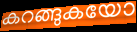
കറങ്ങുകയോ